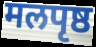
मलपृष्ठ